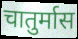
चातुर्मास